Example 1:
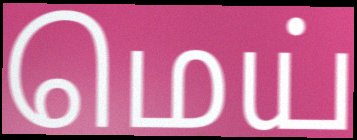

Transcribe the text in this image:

மெய்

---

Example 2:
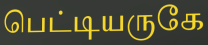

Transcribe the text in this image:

பெட்டியருகே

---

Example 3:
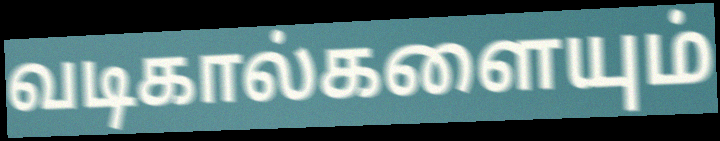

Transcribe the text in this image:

வடிகால்களையும்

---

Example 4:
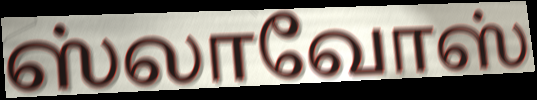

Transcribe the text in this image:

ஸ்லாவோஸ்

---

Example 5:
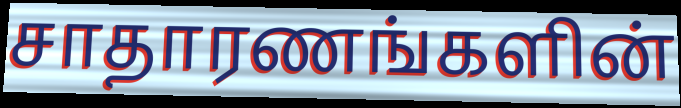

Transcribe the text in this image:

சாதாரணங்களின்